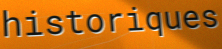
historiques